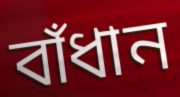
বাঁধান